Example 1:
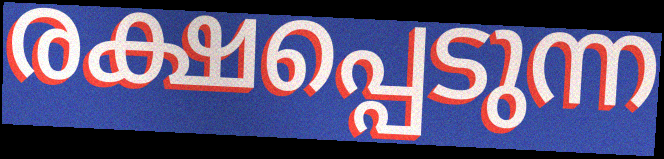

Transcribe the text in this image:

രക്ഷപ്പെടുന്ന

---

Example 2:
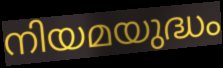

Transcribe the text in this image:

നിയമയുദ്ധം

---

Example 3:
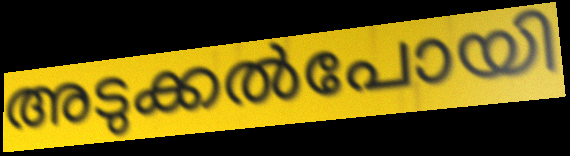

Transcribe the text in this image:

അടുക്കൽപോയി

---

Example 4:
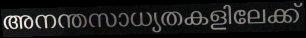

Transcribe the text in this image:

അനന്തസാധ്യതകളിലേക്ക്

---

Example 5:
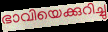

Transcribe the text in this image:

ഭാവിയെക്കുറിച്ചു